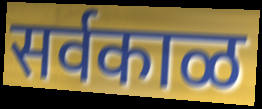
सर्वकाळ